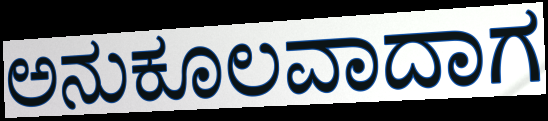
ಅನುಕೂಲವಾದಾಗ